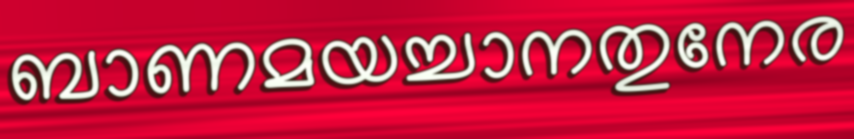
ബാണമയച്ചാനതുനേര